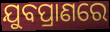
ଯୁବପ୍ରାଣରେ